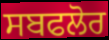
ਸਬਫਲੋਰ